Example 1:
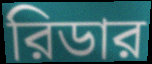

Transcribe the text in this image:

রিডার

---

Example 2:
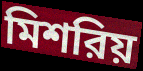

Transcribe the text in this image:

মিশরিয়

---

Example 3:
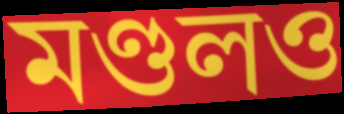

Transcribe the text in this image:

মণ্ডলও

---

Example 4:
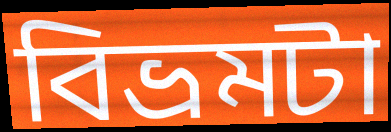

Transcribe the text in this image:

বিভ্রমটা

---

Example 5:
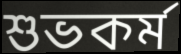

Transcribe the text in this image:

শুভকর্ম